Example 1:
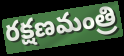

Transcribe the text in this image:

రక్షణమంత్రి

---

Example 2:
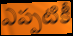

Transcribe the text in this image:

ఎప్పటికీ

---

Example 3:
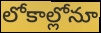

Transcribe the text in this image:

లోకాల్లోనూ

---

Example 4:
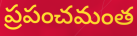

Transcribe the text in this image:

ప్రపంచమంత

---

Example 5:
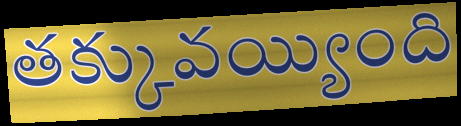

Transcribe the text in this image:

తక్కువయ్యింది